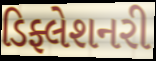
ડિફ્લેશનરી